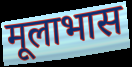
मूलाभास